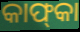
କାଫ୍‌କା